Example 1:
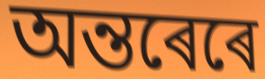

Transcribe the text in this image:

অন্তৰেৰে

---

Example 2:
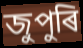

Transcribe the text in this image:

জুপুৰি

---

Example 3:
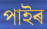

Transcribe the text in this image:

পাইৰ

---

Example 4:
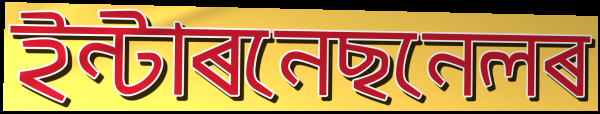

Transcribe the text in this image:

ইন্টাৰনেছনেলৰ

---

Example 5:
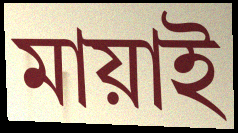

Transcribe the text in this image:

মায়াই